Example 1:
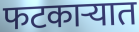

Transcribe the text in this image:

फटकाऱ्यात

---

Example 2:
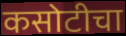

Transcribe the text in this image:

कसोटीचा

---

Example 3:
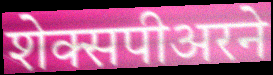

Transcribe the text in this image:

शेक्सपीअरने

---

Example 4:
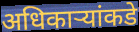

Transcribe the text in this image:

अधिकार्‍यांकडे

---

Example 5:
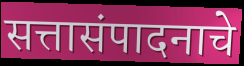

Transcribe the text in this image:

सत्तासंपादनाचे